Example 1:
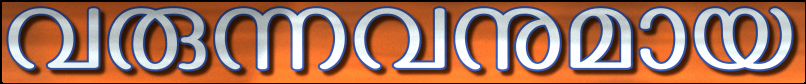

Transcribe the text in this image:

വരുന്നവനുമായ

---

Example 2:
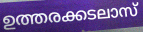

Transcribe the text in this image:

ഉത്തരക്കടലാസ്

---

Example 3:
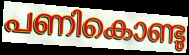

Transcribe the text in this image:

പണികൊണ്ടു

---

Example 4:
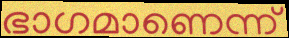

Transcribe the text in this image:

ഭാഗമാണെന്ന്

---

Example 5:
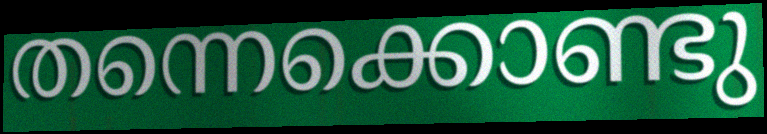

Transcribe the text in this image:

തന്നെക്കൊണ്ടു